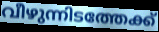
വീഴുന്നിടത്തേക്ക്